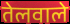
तेलवाले